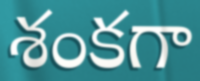
శంకగా